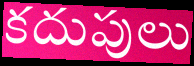
కదుపులు